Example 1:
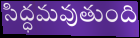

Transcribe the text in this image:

సిద్ధమవుతుంది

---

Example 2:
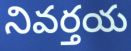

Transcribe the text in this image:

నివర్తయ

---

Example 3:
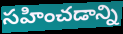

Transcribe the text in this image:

సహించడాన్ని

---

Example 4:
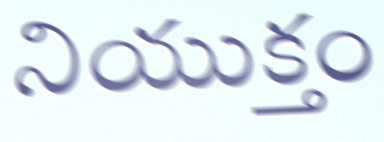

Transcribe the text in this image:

నియుక్తం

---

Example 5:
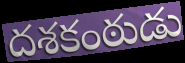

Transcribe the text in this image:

దశకంఠుడు